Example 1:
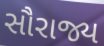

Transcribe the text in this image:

સૌરાજ્ય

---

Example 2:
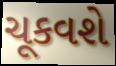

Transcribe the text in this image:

ચૂકવશે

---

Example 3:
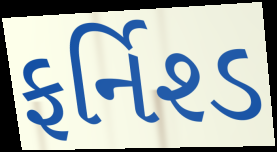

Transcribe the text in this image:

ફર્નિશ્ડ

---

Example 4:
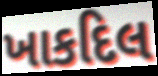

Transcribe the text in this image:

ખાકદિલ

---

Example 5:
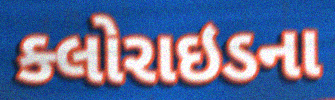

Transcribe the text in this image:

ક્લોરાઇડના